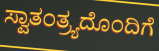
ಸ್ವಾತಂತ್ರ್ಯದೊಂದಿಗೆ